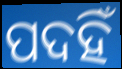
ପଦହିଁ